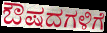
ಔಷದಗಳಿಗೆ